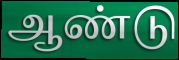
ஆண்டு